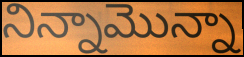
నిన్నామొన్నా